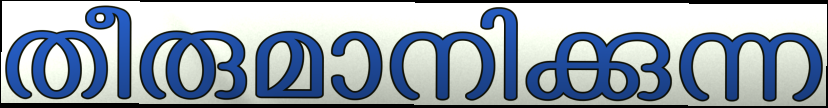
തീരുമാനിക്കുന്ന